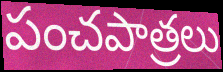
పంచపాత్రలు